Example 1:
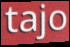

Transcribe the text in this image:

tajo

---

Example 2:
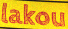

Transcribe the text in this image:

lakou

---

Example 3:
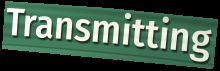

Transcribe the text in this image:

Transmitting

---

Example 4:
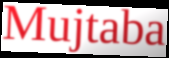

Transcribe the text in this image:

Mujtaba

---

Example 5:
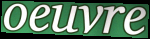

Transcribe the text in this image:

oeuvre